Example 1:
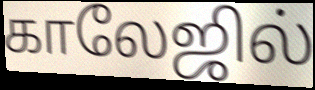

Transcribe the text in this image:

காலேஜில்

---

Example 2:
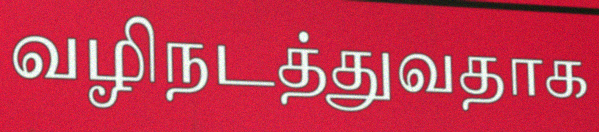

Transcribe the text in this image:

வழிநடத்துவதாக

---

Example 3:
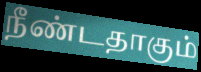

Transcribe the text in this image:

நீண்டதாகும்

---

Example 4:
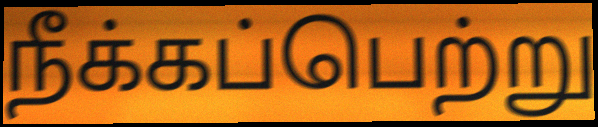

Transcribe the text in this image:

நீக்கப்பெற்று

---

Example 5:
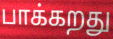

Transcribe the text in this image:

பாக்கறது